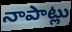
నాపాట్లు